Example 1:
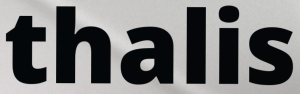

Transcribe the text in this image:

thalis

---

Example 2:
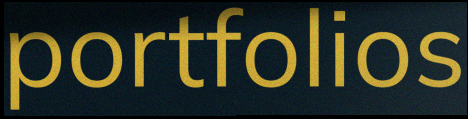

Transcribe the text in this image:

portfolios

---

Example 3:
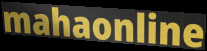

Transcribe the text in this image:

mahaonline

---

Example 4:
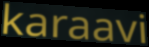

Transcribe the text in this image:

karaavi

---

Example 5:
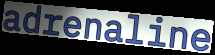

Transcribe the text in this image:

adrenaline